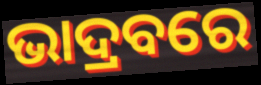
ଭାଦ୍ରବରେ